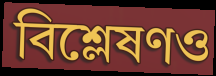
বিশ্লেষণও